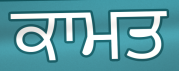
ਕਾਮਤ